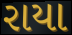
રાયા